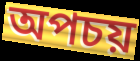
অপচয়